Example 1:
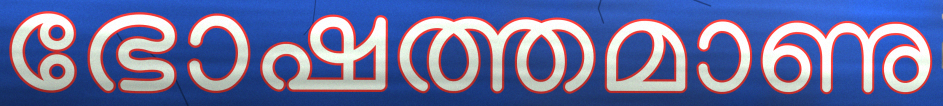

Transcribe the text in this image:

ഭോഷത്തമാണു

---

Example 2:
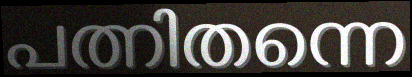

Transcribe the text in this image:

പത്നിതന്നെ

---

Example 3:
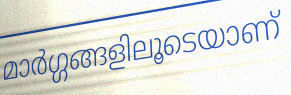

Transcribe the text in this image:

മാർഗ്ഗങ്ങളിലൂടെയാണ്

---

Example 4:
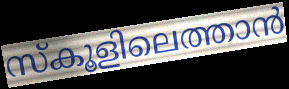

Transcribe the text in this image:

സ്കൂളിലെത്താൻ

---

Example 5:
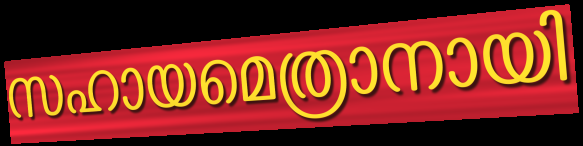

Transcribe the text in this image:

സഹായമെത്രാനായി